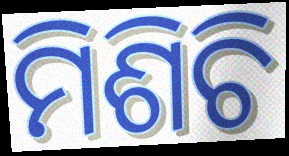
ମିଶିଚି